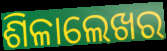
ଶିଳାଲେଖର